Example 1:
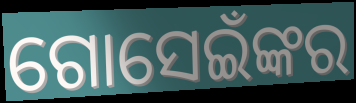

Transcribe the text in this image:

ଗୋସେଇଁଙ୍କର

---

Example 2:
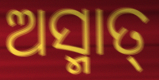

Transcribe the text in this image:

ଅସ୍ମାତ୍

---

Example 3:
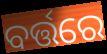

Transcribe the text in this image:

ବର୍ତ୍ତରେ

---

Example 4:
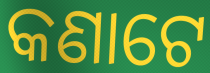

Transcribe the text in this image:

କଣାଟେ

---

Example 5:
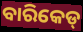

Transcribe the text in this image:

ବାରିକେଡ୍